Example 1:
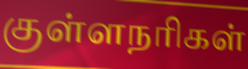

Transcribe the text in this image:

குள்ளநரிகள்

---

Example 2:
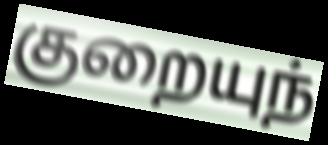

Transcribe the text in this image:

குறையுந்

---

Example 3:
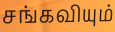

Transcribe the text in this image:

சங்கவியும்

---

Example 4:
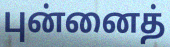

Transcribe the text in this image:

புன்னைத்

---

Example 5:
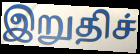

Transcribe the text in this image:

இறுதிச்